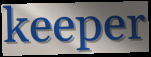
keeper